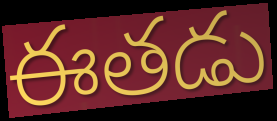
ఈతడు